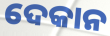
ଦେକାନ